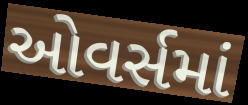
ઓવર્સમાં